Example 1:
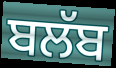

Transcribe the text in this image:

ਬਲੱਬ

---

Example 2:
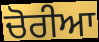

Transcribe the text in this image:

ਚੋਰੀਆ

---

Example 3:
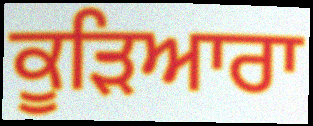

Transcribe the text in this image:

ਕੂੜਿਆਰਾ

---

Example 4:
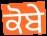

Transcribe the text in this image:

ਕੋਬੇ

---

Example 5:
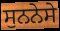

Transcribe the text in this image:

ਸੁਨਨੇਸੇ